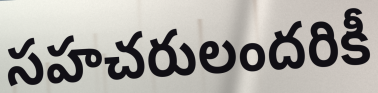
సహచరులందరికీ